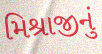
મિશ્રાજીનું